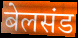
बेलसंड